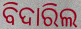
ବିଦାରିଲ